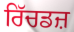
ਰਿੱਚਡਜ਼